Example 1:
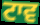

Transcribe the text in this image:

ਟਾਵ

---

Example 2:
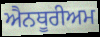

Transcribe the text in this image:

ਐਨਥੂਰੀਅਮ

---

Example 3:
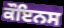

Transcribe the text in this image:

ਕੌਇਨਸ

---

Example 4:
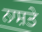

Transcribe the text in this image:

ਨਾਸ਼ਤੇ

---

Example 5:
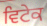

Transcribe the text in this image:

ਵਿਟੇਕ